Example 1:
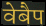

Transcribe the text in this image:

वेबैप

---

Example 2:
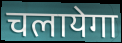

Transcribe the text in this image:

चलायेगा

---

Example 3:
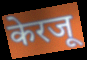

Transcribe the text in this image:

केरजू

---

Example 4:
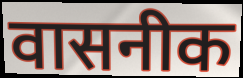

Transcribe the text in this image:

वासनीक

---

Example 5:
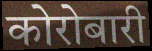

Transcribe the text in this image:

कोरोबारी